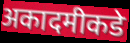
अकादमीकडे